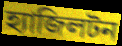
হ্যাজিলটন